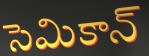
సెమికాన్